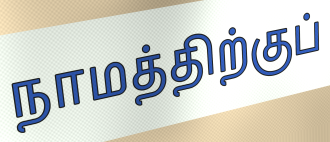
நாமத்திற்குப்